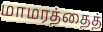
மாமரத்தைத்